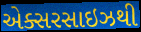
એક્સરસાઇઝથી